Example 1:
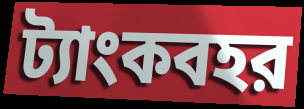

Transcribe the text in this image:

ট্যাংকবহর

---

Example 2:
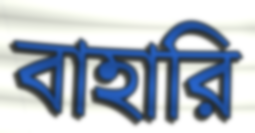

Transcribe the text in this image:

বাহারি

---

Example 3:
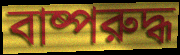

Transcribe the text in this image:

বাষ্পরুদ্ধ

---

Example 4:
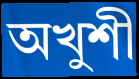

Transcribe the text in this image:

অখুশী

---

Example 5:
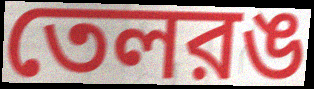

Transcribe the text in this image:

তেলরঙ